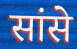
सांसे